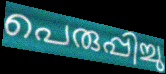
പെരുപ്പിച്ചു